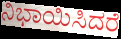
ನಿಭಾಯಿಸಿದರೆ